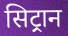
सिट्रान